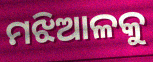
ମଝିଆଳକୁ